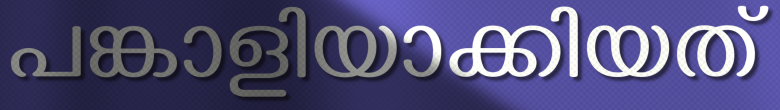
പങ്കാളിയാക്കിയത്